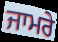
ਜਾਮਰੇ